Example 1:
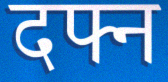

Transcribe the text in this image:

दफ्न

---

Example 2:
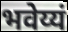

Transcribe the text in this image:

भवेय्यं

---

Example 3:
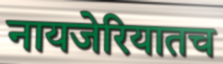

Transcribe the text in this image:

नायजेरियातच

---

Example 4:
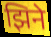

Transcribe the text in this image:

झिने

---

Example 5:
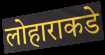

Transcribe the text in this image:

लोहाराकडे